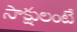
సాక్షులంటే